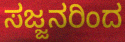
ಸಜ್ಜನರಿಂದ